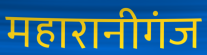
महारानीगंज